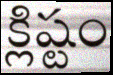
క్లిష్టం